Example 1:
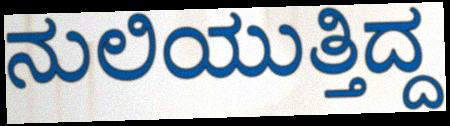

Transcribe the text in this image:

ನುಲಿಯುತ್ತಿದ್ದ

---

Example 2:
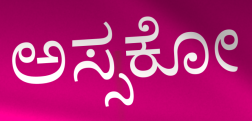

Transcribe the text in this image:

ಅಸ್ಸಕೋ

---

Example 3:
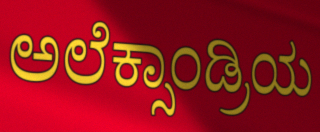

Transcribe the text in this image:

ಅಲೆಕ್ಸಾಂಡ್ರಿಯ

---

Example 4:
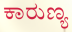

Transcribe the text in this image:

ಕಾರುಣ್ಯ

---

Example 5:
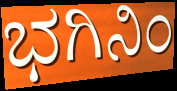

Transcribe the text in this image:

ಭಗಿನಿಂ